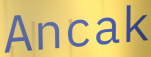
Ancak